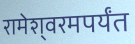
रामेश्वरमपर्यंत